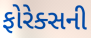
ફોરેક્સની